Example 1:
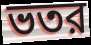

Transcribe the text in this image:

ভতর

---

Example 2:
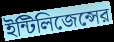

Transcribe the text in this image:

ইন্টিলিজেন্সের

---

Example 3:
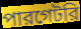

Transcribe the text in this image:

পারগেটরি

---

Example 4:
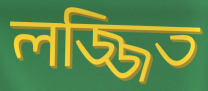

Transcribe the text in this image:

লজ্জিত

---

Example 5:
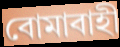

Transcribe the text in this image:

বোমাবাহী